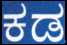
ಕಡ